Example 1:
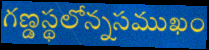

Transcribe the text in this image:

గణ్డస్థలోన్నసముఖం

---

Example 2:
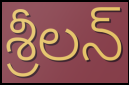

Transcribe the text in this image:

శ్రీలన్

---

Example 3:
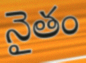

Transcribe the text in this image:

నైతం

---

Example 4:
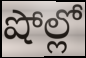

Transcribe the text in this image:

షోల్లో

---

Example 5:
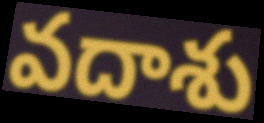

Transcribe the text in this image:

వదాశు